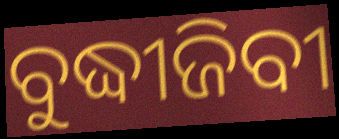
ବୁଦ୍ଧୀଜିବୀ